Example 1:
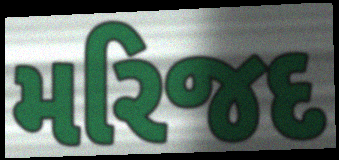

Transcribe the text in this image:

મરિજદ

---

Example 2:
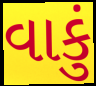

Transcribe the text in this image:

વાકું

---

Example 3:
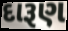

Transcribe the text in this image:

દારૂણ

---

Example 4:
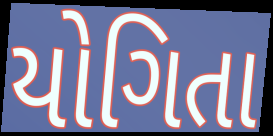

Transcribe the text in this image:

યોગિતા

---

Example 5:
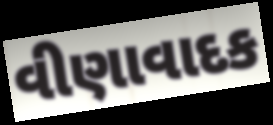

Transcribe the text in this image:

વીણાવાદક